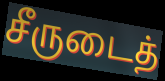
சீருடைத்